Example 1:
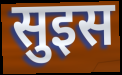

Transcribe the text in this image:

सुइस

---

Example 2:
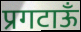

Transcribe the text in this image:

प्रगटाऊँ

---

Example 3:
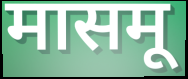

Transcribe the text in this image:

मासमू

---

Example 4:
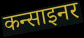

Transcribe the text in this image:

कन्साइनर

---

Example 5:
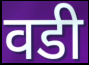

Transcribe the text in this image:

वडी